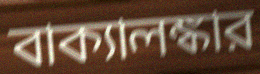
বাক্যালঙ্কার